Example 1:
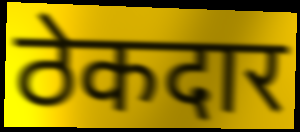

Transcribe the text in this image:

ठेकदार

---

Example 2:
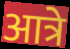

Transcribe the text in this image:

आत्रे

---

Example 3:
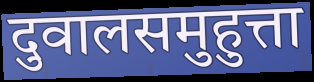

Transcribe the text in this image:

दुवालसमुहुत्ता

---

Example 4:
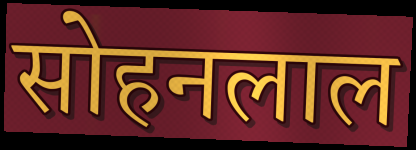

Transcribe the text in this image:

सोहनलाल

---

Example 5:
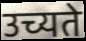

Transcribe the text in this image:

उच्यते